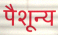
पैशून्य